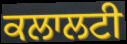
ਕਲਾਲਟੀ